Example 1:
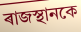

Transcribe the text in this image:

ৰাজস্থানকে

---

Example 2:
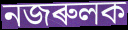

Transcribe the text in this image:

নজৰুলক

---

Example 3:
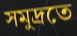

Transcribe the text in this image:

সমুদ্ৰতে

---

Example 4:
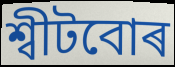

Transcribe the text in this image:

শ্বীটবোৰ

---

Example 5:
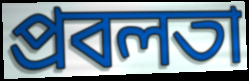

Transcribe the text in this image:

প্ৰবলতা